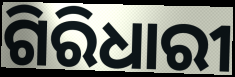
ଗିରିଧାରୀ